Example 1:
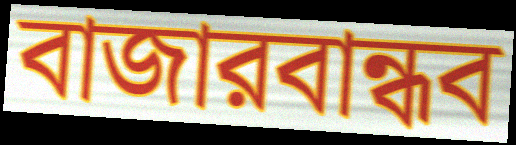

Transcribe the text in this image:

বাজারবান্ধব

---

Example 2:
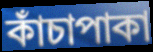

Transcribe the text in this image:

কাঁচাপাকা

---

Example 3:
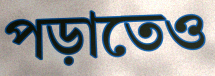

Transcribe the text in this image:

পড়াতেও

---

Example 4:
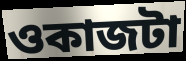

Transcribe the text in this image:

ওকাজটা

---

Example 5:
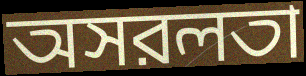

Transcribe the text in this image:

অসরলতা